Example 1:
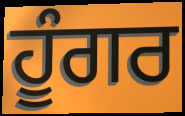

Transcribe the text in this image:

ਹੂੰਗਰ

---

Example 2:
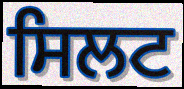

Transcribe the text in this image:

ਸਿਲਟ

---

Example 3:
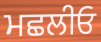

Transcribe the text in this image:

ਮਛਲੀਓ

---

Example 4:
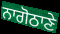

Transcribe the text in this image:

ਨਾਗੋਠਾਣੇ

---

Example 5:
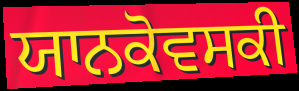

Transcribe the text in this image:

ਯਾਨਕੋਵਸਕੀ